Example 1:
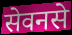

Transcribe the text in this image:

सेवनसे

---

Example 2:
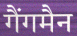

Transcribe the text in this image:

गैंगमैन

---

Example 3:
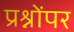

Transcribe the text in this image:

प्रश्नोंपर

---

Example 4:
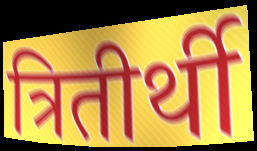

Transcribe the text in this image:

त्रितीर्थी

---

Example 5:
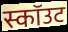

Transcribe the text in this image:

स्कॉउट